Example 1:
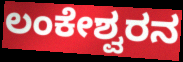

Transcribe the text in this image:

ಲಂಕೇಶ್ವರನ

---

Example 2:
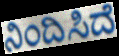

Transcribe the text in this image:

ನಿಂದಿಸಿದೆ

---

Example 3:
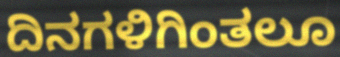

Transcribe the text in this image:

ದಿನಗಳಿಗಿಂತಲೂ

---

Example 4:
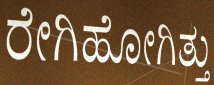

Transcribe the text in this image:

ರೇಗಿಹೋಗಿತ್ತು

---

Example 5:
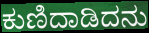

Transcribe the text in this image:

ಕುಣಿದಾಡಿದನು